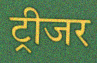
ट्रीजर